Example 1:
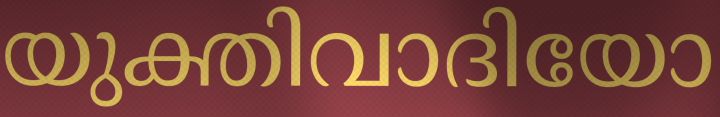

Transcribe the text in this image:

യുക്തിവാദിയോ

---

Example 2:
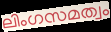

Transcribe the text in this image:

ലിംഗസമത്വം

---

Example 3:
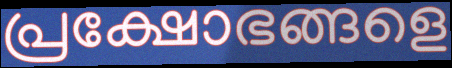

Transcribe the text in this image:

പ്രക്ഷോഭങ്ങളെ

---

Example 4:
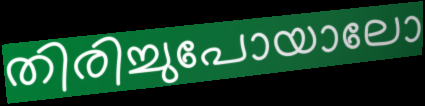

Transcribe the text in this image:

തിരിച്ചുപോയാലോ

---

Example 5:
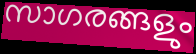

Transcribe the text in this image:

സാഗരങ്ങളും